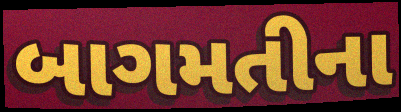
બાગમતીના